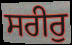
ਸਰੀਰੁ